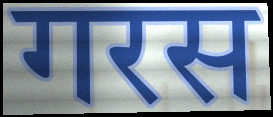
गरस